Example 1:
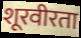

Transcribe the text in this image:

शूरवीरता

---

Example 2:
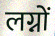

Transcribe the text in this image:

लग्नों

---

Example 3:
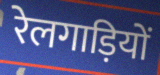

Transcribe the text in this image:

रेलगाड़ियों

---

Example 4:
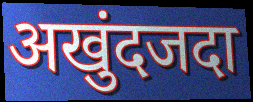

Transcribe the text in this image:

अखुंदजदा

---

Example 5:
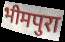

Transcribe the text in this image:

भीमपुरा